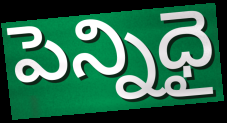
పెన్నిధై